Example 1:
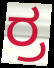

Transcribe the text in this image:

ರ್ರ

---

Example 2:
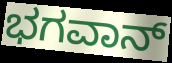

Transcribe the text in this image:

ಭಗವಾನ್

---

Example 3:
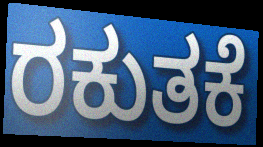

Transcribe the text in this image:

ರಕುತಕೆ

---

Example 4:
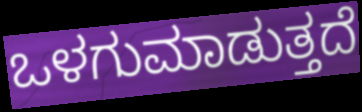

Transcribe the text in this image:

ಒಳಗುಮಾಡುತ್ತದೆ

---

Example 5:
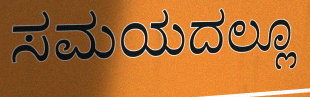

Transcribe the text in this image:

ಸಮಯದಲ್ಲೂ